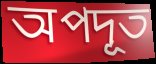
অপদূত